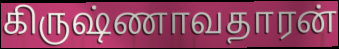
கிருஷ்ணாவதாரன்